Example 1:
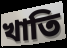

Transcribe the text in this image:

খাতি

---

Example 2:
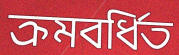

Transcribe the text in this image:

ক্ৰমবৰ্ধিত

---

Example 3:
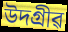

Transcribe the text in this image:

উদগ্ৰীৱ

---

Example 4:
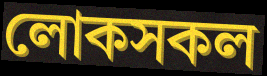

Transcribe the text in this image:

লোকসকল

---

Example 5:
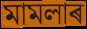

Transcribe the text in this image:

মামলাৰ